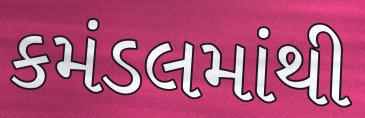
કમંડલમાંથી